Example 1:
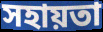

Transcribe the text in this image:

সহায়তা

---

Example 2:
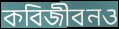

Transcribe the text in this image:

কবিজীবনও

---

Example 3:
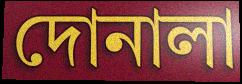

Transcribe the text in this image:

দোনালা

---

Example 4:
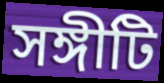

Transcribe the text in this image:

সঙ্গীটি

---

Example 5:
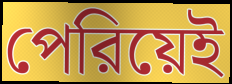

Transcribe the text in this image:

পেরিয়েই